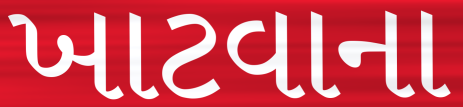
ખાટવાના